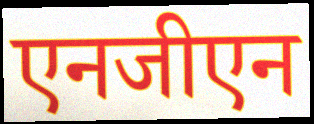
एनजीएन